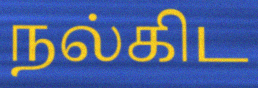
நல்கிட